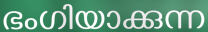
ഭംഗിയാക്കുന്ന